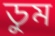
ডুম